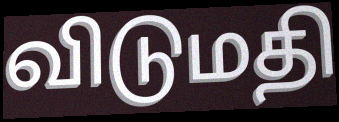
விடுமதி